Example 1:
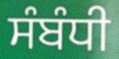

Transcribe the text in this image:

ਸੰਬੰਧੀ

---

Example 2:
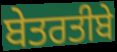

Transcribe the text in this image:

ਬੇਤਰਤੀਬੇ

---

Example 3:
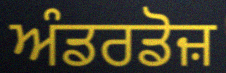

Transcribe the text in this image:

ਅੰਡਰਡੋਜ਼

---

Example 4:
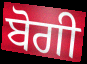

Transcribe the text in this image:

ਬੋਗੀ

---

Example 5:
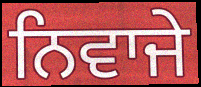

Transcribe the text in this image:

ਨਿਵਾਜੇ